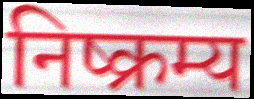
निष्क्रम्य